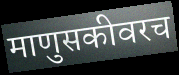
माणुसकीवरच